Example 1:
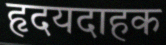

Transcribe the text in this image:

हृदयदाहक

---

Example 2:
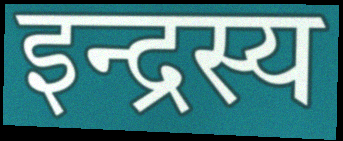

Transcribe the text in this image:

इन्द्रस्य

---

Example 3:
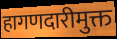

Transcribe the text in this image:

हागणदारीमुक्त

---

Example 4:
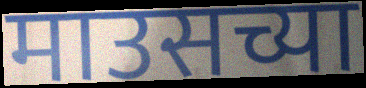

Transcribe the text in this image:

माउसच्या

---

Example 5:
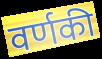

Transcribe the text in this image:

वर्णकी